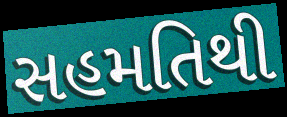
સહમતિથી